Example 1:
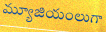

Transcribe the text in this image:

మ్యూజియంలుగా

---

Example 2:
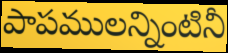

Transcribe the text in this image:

పాపములన్నింటినీ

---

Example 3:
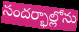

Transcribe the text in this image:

సందర్భాల్లోను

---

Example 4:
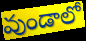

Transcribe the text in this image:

వుండాలో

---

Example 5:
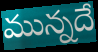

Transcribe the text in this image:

మున్నదే